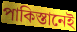
পাকিস্তানেই